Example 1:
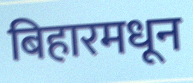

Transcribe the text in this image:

बिहारमधून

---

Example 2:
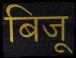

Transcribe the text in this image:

बिजू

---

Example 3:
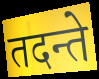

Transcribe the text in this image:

तदन्ते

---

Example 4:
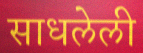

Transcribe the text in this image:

साधलेली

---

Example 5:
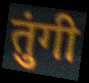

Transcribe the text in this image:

तुंगी